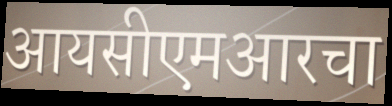
आयसीएमआरचा